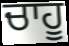
ਚਾਹੂ